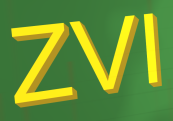
ZVI